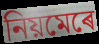
নিয়মেৰে